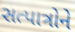
સત્પાત્રોને